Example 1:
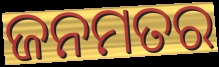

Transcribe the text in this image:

ଜନମତର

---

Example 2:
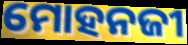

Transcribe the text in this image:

ମୋହନଜୀ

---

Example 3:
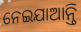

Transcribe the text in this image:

ନେଇଯାଆନ୍ତି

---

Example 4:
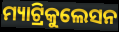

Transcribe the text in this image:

ମ୍ୟାଟ୍ରିକୁଲେସନ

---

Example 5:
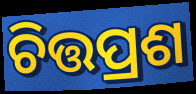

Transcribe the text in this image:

ଚିତ୍ତପ୍ରଶ